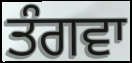
ਤੰਗਵਾ